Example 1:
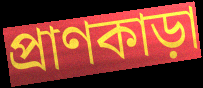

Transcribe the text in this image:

প্রাণকাড়া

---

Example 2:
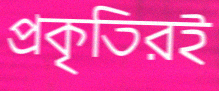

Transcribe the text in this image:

প্রকৃতিরই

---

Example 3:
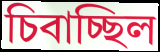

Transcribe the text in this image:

চিবাচ্ছিল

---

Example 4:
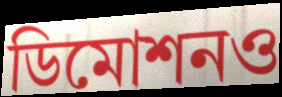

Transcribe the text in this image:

ডিমোশনও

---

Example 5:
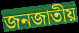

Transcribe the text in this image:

জনজাতীয়